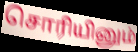
சொரியினும்